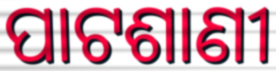
ପାଟଶାଣୀ